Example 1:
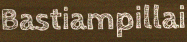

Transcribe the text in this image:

Bastiampillai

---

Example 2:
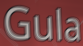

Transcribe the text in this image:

Gula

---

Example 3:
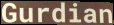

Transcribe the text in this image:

Gurdian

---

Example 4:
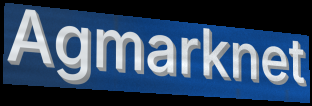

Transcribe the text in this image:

Agmarknet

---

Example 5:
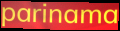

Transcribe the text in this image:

parinama